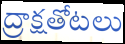
ద్రాక్షతోటలు